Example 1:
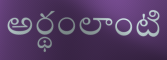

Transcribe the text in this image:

అర్థంలాంటి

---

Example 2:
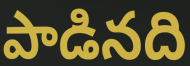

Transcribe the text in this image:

పాడినది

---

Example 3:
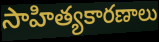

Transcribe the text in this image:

సాహిత్యకారణాలు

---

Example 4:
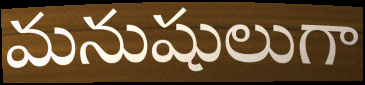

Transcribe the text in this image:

మనుషులుగా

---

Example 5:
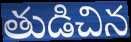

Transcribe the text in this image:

తుడిచిన